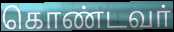
கொண்டவர்